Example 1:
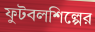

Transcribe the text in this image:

ফুটবলশিল্পের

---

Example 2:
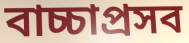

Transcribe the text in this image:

বাচ্চাপ্রসব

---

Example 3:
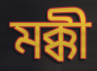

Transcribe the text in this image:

মক্কী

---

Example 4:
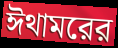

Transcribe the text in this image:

ঈথামরের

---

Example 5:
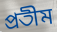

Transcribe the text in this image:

প্রতীম